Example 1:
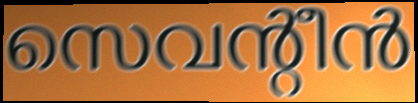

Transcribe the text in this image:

സെവന്റീൻ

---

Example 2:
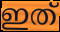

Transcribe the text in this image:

ഇത്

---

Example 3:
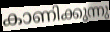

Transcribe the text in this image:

കാണിക്കുന്നു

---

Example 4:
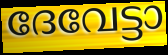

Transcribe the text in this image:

ദേവേട്ടാ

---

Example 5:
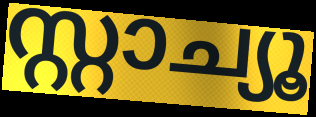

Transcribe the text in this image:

സ്റ്റാച്യൂ